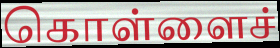
கொள்ளைச்